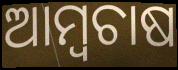
ଆମ୍ୱଚାଷ